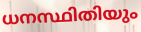
ധനസ്ഥിതിയും